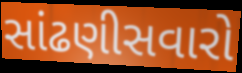
સાંઢણીસવારો